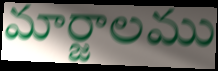
మార్జాలము